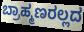
ಬ್ರಾಹ್ಮಣರಲ್ಲದ